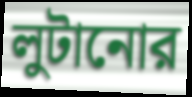
লুটানোর